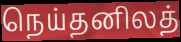
நெய்தனிலத்